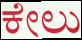
ಕೇಲು